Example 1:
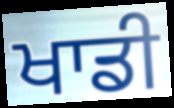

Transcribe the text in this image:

ਖਾਡੀ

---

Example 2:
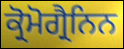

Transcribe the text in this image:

ਕ੍ਰੋਮੋਗ੍ਰੈਨਿਨ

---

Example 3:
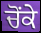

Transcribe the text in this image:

ਚੋਂਕੇ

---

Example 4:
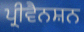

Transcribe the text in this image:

ਪ੍ਰੀਵੈਨਸ਼ਨ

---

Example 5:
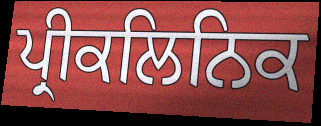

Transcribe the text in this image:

ਪ੍ਰੀਕਲਿਨਿਕ